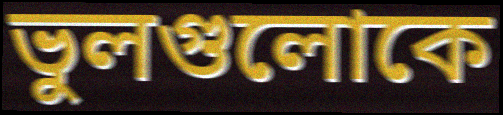
ভুলগুলোকে